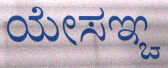
ಯೇಸಞ್ಚ